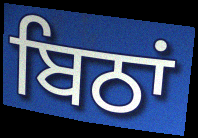
ਬਿਠਾਂ